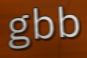
gbb